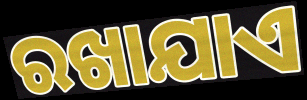
ରଖାଯାଏ